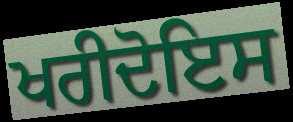
ਖਰੀਦੋਇਸ